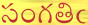
సంగతిఁ